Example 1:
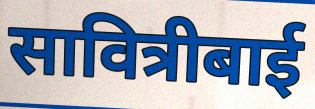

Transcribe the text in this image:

सावित्रीबाई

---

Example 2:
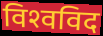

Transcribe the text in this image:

विश्वविद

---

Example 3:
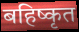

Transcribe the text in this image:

बहिष्कृत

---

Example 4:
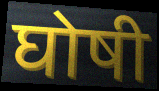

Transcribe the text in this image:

घोषी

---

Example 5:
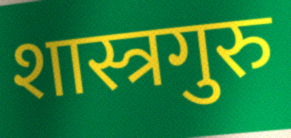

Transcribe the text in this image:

शास्त्रगुरु